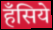
हँसिये